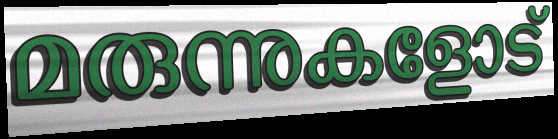
മരുന്നുകളോട്